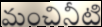
మంచినీటి